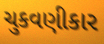
ચુકવણીકાર